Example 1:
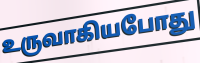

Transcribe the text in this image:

உருவாகியபோது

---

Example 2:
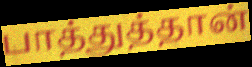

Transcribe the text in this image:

பாத்துத்தான்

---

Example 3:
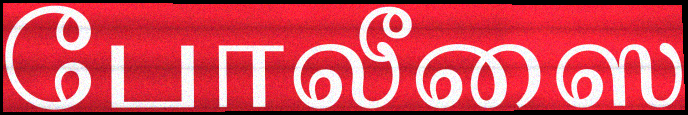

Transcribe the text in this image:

போலீஸை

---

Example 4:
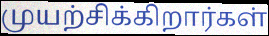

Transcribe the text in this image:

முயற்சிக்கிறார்கள்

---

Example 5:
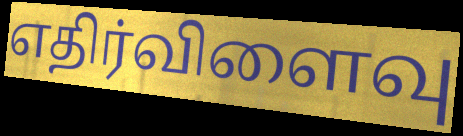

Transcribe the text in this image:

எதிர்விளைவு